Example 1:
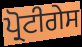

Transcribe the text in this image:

ਪ੍ਰੋਟੀਗੇਸ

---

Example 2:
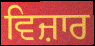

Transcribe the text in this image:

ਵਿਜ਼ਾਰ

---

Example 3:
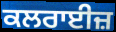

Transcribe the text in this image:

ਕਲਰਾਈਜ਼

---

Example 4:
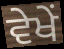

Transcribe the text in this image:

ਵੇਖੇਂ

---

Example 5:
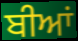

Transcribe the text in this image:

ਬੀਆਂ